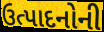
ઉત્પાદનોની